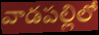
వాడపల్లిలో